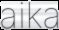
aika